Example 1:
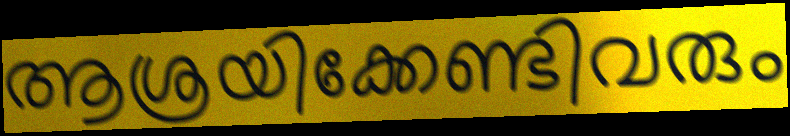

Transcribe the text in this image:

ആശ്രയിക്കേണ്ടിവരും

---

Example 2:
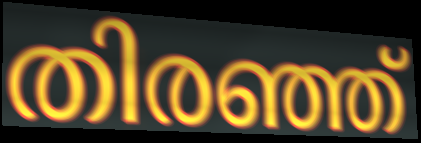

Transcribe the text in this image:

തിരഞ്ഞ്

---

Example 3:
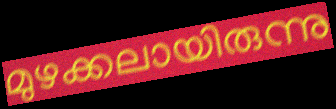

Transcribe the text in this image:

മുഴക്കലായിരുന്നു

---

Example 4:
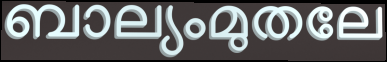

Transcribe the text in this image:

ബാല്യംമുതലേ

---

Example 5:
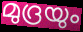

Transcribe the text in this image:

മുദ്രയും